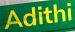
Adithi